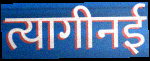
त्यागीनई